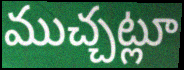
ముచ్చట్లూ